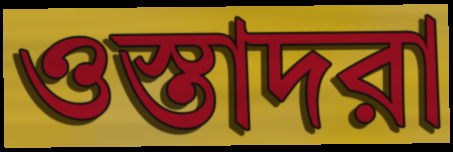
ওস্তাদরা